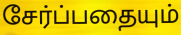
சேர்ப்பதையும்